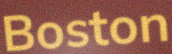
Boston